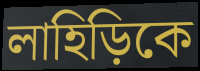
লাহিড়িকে